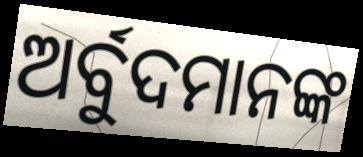
ଅର୍ବୁଦମାନଙ୍କ